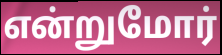
என்றுமோர்